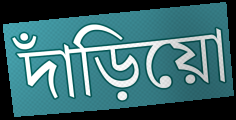
দাঁড়িয়ো